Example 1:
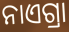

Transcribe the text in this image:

ନାଏଗ୍ରା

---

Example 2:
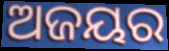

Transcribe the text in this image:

ଅଜୟର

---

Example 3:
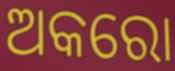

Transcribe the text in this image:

ଅକରୋ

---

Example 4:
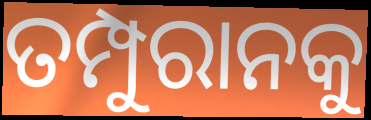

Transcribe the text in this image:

ତମ୍ପୁରାନକୁ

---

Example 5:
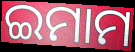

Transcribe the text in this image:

ଇମାମ